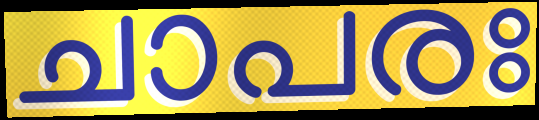
ചാപരഃ